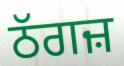
ਠੱਗਜ਼